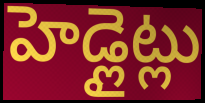
హెడ్లైట్లు